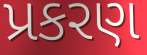
પ્રકરણ